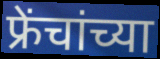
फ्रेंचांच्या